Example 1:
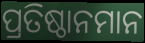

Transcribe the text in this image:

ପ୍ରତିଷ୍ଠାନମାନ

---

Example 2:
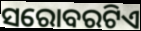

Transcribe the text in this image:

ସରୋବରଟିଏ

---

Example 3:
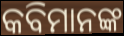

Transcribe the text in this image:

କବିମାନଙ୍କ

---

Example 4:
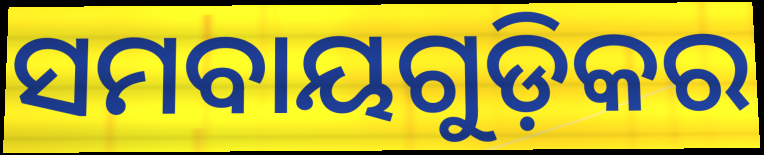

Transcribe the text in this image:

ସମବାୟଗୁଡ଼ିକର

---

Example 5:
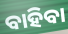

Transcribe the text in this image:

ବାହିବା